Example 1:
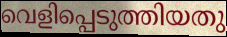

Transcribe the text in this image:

വെളിപ്പെടുത്തിയതു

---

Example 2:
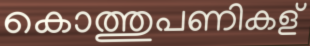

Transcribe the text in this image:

കൊത്തുപണികള്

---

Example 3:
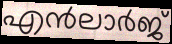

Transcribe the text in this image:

എൻലാർജ്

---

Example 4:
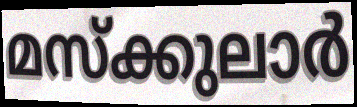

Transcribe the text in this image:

മസ്ക്കുലാർ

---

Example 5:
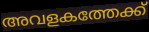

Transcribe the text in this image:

അവളകത്തേക്ക്